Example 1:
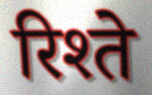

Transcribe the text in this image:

रिश्ते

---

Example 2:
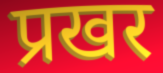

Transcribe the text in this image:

प्रखर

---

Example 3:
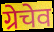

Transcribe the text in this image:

ग्रेचेव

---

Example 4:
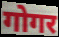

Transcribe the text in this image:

गोगर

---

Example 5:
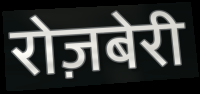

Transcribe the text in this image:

रोज़बेरी